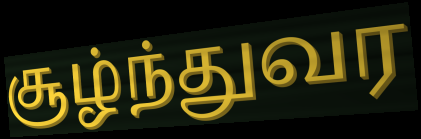
சூழ்ந்துவர